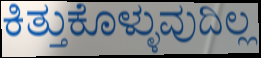
ಕಿತ್ತುಕೊಳ್ಳುವುದಿಲ್ಲ